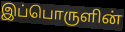
இப்பொருளின்